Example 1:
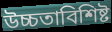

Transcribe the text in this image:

উচ্চতাবিশিষ্ট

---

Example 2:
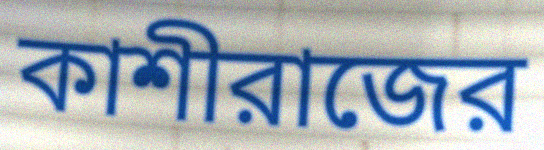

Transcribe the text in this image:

কাশীরাজের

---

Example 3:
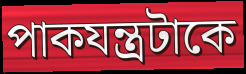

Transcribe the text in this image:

পাকযন্ত্রটাকে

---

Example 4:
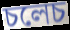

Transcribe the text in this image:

চলেচ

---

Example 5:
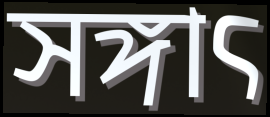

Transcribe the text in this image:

সঙ্গাৎ